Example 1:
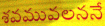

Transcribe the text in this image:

శవమువలననే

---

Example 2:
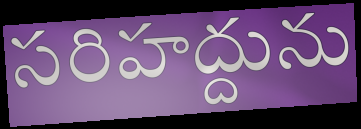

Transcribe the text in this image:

సరిహద్దును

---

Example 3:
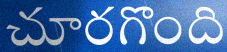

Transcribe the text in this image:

చూరగొంది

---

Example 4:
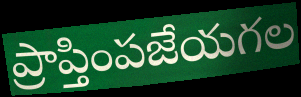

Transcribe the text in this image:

ప్రాప్తింపజేయగల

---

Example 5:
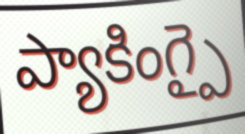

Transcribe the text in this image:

ప్యాకింగ్పై